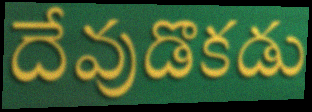
దేవుడొకడు